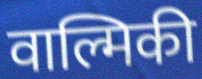
वाल्मिकी